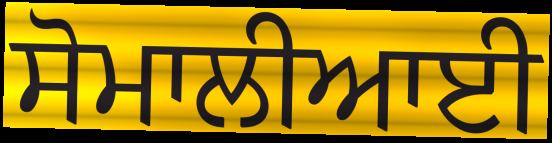
ਸੋਮਾਲੀਆਈ